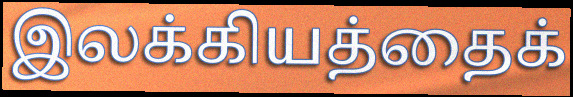
இலக்கியத்தைக்